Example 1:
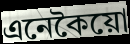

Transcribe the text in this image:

এনেকৈয়ো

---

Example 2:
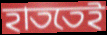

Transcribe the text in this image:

হাততেই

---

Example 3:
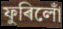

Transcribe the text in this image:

ফুৰিলোঁ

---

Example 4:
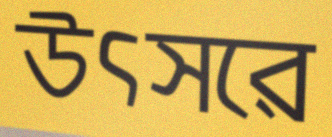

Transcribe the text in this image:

উৎসৱে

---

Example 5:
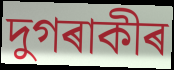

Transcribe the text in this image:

দুগৰাকীৰ